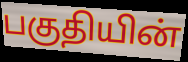
பகுதியின்